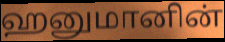
ஹனுமானின்